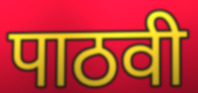
पाठवी